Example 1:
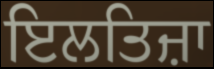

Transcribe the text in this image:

ਇਲਤਿਜ਼ਾ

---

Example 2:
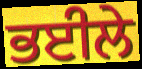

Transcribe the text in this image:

ਭਈਲੇ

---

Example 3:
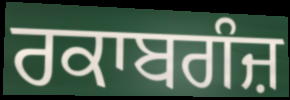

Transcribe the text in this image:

ਰਕਾਬਗੰਜ਼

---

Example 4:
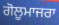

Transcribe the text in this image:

ਗੋਲੂਮਾਜਰਾ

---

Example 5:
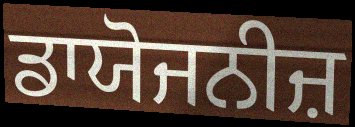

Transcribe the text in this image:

ਡਾਯੋਜਨੀਜ਼